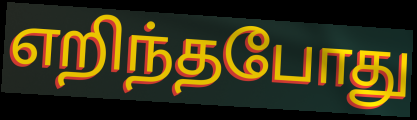
எறிந்தபோது